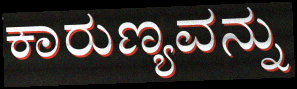
ಕಾರುಣ್ಯವನ್ನು